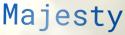
Majesty